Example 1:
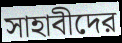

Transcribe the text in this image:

সাহাবীদের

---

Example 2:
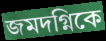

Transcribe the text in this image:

জমদগ্নিকে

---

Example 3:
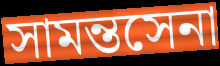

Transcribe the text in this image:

সামন্তসেনা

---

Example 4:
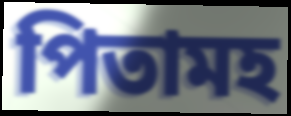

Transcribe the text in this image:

পিতামহ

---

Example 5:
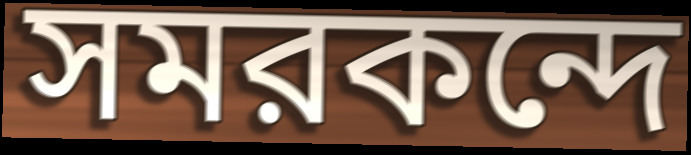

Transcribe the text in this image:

সমরকন্দে